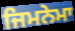
ਜਿਮਨੇਮਾ